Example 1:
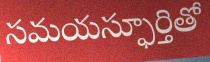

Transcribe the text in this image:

సమయస్ఫూర్తితో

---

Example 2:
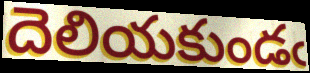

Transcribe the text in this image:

దెలియకుండఁ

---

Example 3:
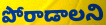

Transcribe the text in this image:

పోరాడాలని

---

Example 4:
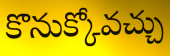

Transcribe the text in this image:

కొనుక్కోవచ్చు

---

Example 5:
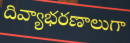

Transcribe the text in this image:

దివ్యాభరణాలుగా